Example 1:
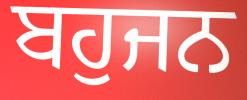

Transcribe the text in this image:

ਬਹੁਜਨ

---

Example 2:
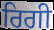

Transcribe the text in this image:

ਰਿਗੀ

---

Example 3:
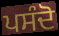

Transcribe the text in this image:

ਪਸੰਦੋ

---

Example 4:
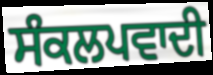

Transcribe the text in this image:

ਸੰਕਲਪਵਾਦੀ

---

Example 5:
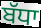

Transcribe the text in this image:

ਬੱਧਾ